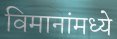
विमानांमध्ये